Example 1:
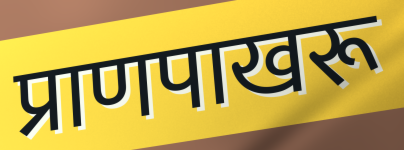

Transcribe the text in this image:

प्राणपाखरू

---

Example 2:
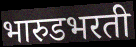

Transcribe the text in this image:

भारुडभरती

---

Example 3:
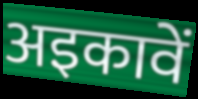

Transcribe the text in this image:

अइकावें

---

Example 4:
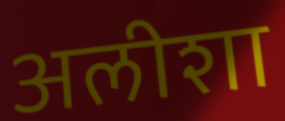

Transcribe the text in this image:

अलीशा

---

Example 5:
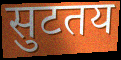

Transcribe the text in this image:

सुटतय